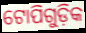
ଟୋପିଗୁଡ଼ିକ